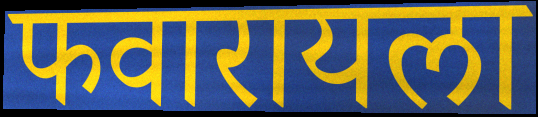
फवारायला